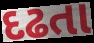
દઢતા